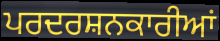
ਪਰਦਰਸ਼ਨਕਾਰੀਆਂ